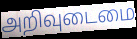
அறிவுடைமை